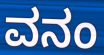
ವನಂ